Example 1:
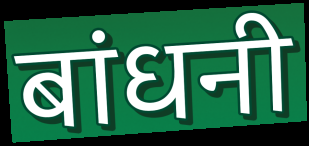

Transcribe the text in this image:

बांधनी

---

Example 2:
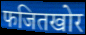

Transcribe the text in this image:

फजितखोर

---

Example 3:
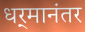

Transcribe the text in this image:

धर्मानंतर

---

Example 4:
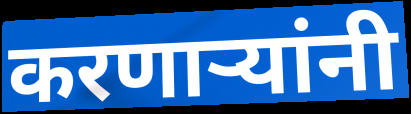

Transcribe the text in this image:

करणार्‍यांनी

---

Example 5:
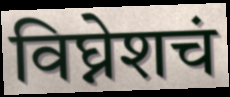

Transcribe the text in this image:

विघ्नेशचं